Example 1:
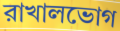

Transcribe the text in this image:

রাখালভোগ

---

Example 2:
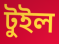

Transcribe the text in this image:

টুইল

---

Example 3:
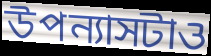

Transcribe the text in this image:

উপন্যাসটাও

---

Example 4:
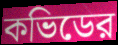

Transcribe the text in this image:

কভিডের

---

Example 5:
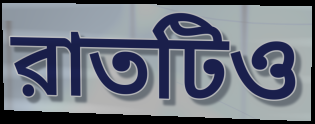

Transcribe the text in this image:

রাতটিও